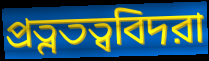
প্রত্নতত্ববিদরা